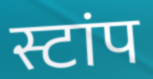
स्टांप